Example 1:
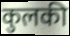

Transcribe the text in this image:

कुलकी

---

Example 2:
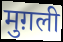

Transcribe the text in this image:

मुग़ली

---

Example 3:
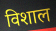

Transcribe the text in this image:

विशाल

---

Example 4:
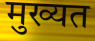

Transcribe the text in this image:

मुख्यत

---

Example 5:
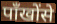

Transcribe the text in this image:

पाँखोंसे